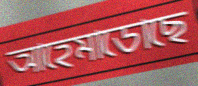
আহেমাডোছে